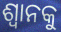
ଶ୍ଵାନକୁ